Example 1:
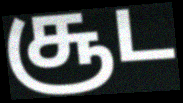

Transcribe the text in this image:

சூட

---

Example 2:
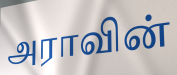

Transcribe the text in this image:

அராவின்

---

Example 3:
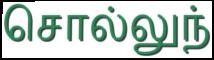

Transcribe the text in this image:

சொல்லுந்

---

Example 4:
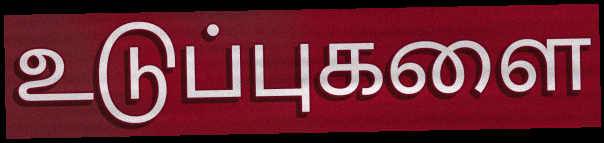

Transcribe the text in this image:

உடுப்புகளை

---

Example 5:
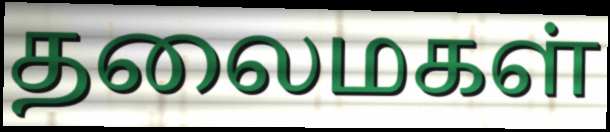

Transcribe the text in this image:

தலைமகள்